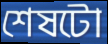
শেষটো